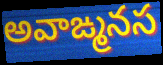
అవాఙ్మనస